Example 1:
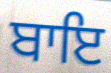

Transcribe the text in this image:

ਬਾਇ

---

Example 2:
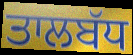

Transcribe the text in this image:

ਤਾਲਬੱਧ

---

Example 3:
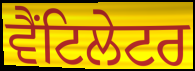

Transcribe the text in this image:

ਵੈਂਟਿਲੇਟਰ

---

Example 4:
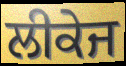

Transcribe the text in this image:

ਲੀਕੇਜ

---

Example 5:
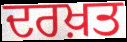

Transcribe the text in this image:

ਦਰਖ਼ਤ